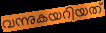
വന്നുകയറിയത്